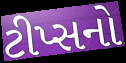
ટીપ્સનો